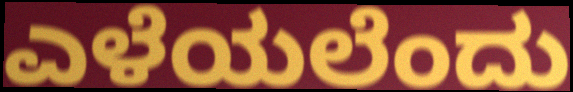
ಎಳೆಯಲೆಂದು